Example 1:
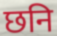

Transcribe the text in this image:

छनि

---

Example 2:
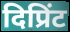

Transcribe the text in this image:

दिप्रिंट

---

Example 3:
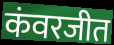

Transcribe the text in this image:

कंवरजीत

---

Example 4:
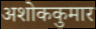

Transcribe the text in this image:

अशोककुमार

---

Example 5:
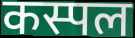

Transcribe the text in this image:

कस्पल